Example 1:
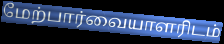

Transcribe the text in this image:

மேற்பார்வையாளரிடம்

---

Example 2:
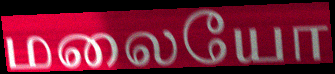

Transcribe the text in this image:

மலையோ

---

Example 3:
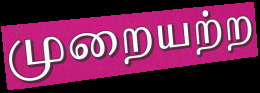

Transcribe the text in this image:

முறையற்ற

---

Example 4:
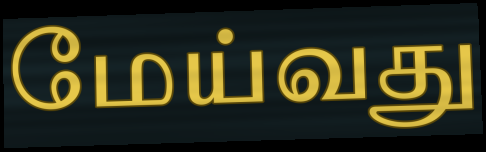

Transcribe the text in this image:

மேய்வது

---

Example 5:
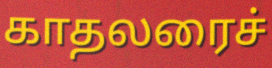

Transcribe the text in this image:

காதலரைச்